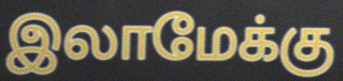
இலாமேக்கு